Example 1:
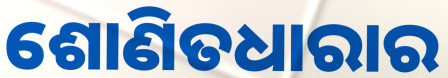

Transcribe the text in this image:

ଶୋଣିତଧାରାର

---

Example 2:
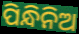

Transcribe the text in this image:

ପିନ୍ଧିନିଅ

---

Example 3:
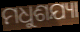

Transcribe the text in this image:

ମଧୁଶଯ୍ୟା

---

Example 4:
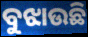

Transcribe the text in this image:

ବୁଝାଉଛି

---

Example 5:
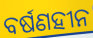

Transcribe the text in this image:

ବର୍ଷଣହୀନ